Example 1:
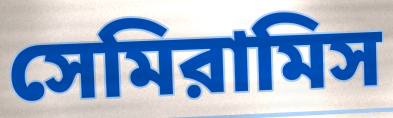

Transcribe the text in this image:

সেমিরামিস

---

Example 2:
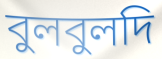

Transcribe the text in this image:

বুলবুলদি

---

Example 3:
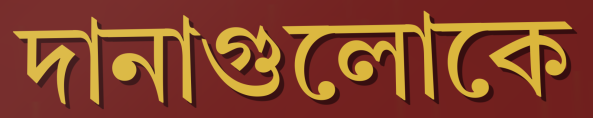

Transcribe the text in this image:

দানাগুলোকে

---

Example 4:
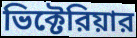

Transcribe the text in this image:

ভিক্টেরিয়ার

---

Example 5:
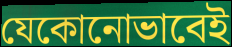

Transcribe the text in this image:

যেকোনোভাবেই